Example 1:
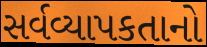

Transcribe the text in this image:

સર્વવ્યાપકતાનો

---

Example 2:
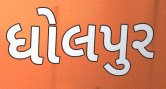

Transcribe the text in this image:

ધોલપુર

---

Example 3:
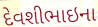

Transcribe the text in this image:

દેવશીભાઇના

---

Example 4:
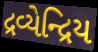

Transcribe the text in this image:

દ્રવ્યેન્દ્રિય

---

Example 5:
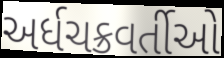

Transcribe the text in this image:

અર્ધચક્રવર્તીઓ